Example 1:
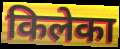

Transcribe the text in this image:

किलेका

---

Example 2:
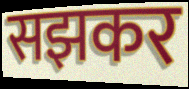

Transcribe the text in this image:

सझकर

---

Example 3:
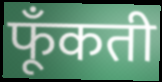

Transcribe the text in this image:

फूँकती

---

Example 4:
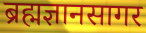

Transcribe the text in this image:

ब्रह्मज्ञानसागर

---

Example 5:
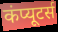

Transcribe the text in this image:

कंप्यूटर्स